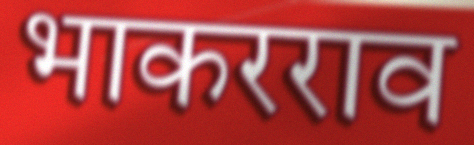
भाकरराव